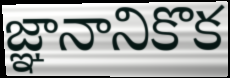
జ్ఞానానికొక